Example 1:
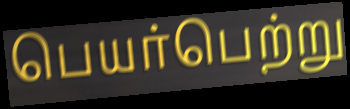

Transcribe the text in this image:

பெயர்பெற்று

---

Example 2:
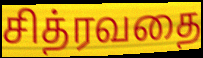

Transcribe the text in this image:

சித்ரவதை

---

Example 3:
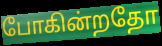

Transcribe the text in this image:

போகின்றதோ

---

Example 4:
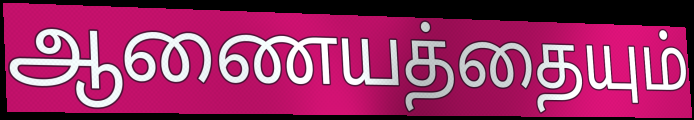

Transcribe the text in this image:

ஆணையத்தையும்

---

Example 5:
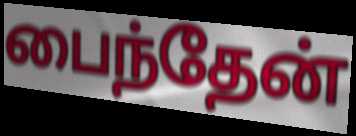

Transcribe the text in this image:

பைந்தேன்